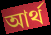
আৰ্থ